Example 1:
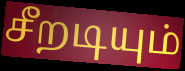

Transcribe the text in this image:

சீறடியும்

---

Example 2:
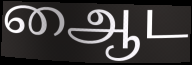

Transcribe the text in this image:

ஆைட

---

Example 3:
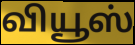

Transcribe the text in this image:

வியூஸ்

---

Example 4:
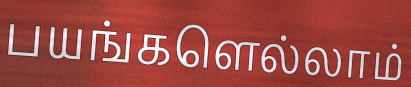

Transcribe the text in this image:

பயங்களெல்லாம்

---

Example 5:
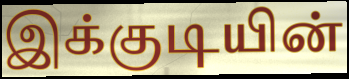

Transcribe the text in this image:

இக்குடியின்